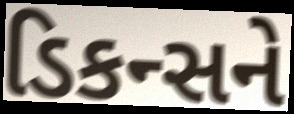
ડિકન્સને